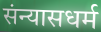
संन्यासधर्म